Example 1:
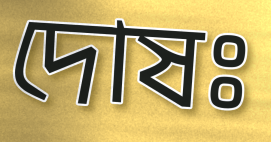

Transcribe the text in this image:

দোষঃ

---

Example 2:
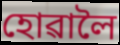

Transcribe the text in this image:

হোৱালৈ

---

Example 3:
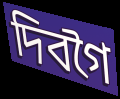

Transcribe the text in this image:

দিবগৈ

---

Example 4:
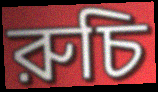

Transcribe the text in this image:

ৰুচি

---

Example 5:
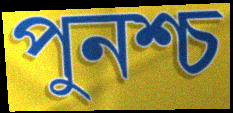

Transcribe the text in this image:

পুনশ্চ